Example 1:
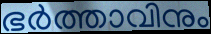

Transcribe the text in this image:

ഭർത്താവിനും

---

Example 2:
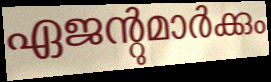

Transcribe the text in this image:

ഏജന്റുമാർക്കും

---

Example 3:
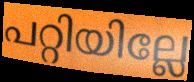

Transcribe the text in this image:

പറ്റിയില്ലേ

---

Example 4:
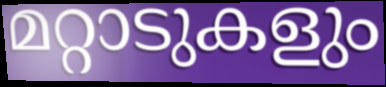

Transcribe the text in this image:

മറ്റാടുകളും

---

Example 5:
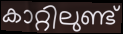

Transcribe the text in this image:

കാറ്റിലുണ്ട്